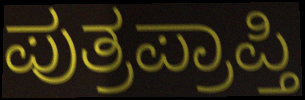
ಪುತ್ರಪ್ರಾಪ್ತಿ